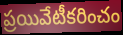
ప్రయివేటీకరించం